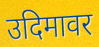
उदिमावर